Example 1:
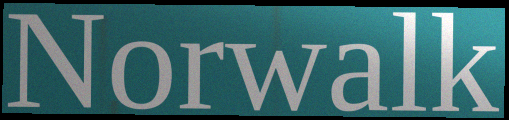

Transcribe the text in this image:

Norwalk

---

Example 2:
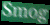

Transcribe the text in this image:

Smog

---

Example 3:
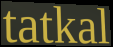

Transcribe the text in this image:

tatkal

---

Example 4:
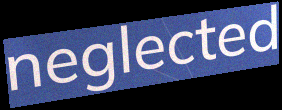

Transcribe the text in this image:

neglected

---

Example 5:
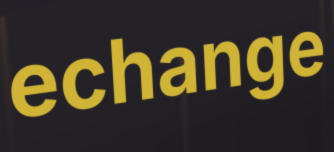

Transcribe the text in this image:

echange